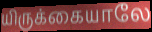
யிருக்கையாலே